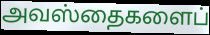
அவஸ்தைகளைப்